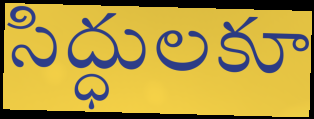
సిద్ధులకూ